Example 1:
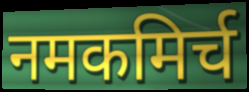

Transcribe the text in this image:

नमकमिर्च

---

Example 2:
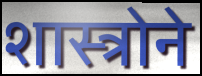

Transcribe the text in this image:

शास्त्रोने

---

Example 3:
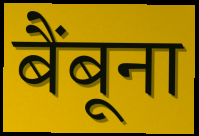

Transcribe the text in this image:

बैंबूना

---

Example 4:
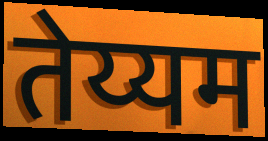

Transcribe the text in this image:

तेय्यम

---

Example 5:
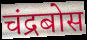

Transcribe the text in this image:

चंद्रबोस